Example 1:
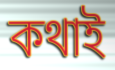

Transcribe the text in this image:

কথাই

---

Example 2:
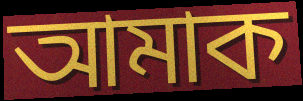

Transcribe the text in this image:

আমাক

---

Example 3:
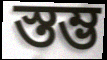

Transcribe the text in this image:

স্তম্ভ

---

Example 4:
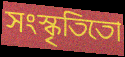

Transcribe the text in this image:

সংস্কৃতিতো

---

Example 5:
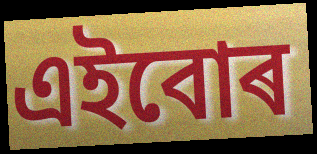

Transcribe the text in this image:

এইবোৰ